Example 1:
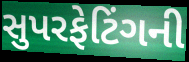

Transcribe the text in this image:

સુપરફેટિંગની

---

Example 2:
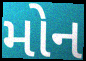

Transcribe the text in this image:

મોન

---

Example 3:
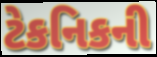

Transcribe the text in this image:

ટેકનિકની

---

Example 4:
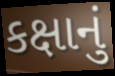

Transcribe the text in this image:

કક્ષાનું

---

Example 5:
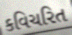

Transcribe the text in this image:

કવિચરિત